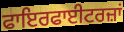
ਫਾਇਰਫਾਈਟਰਜ਼ਾਂ